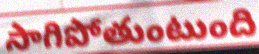
సాగిపోతుంటుంది